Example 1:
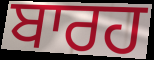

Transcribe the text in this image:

ਬਾਰਹ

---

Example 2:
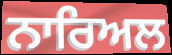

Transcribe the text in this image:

ਨਾਰਿਅਲ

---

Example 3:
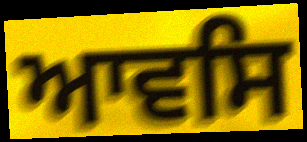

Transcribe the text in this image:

ਆਵਸਿ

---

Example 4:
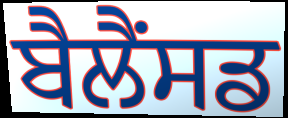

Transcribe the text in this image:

ਬੈਲੈਂਸਡ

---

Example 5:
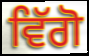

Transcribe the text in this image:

ਵਿੱਗੋ